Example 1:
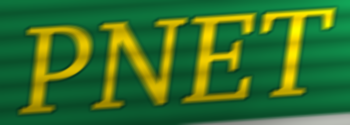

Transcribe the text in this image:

PNET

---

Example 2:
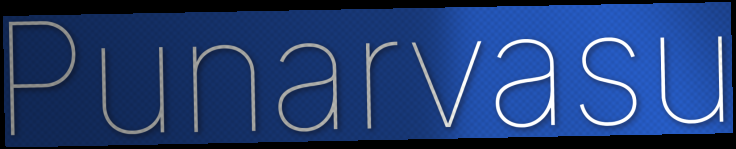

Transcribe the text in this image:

Punarvasu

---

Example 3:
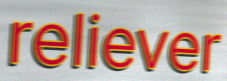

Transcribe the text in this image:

reliever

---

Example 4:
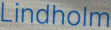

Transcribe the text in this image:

Lindholm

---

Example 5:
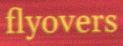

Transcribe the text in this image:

flyovers